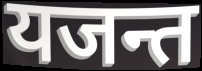
यजन्त